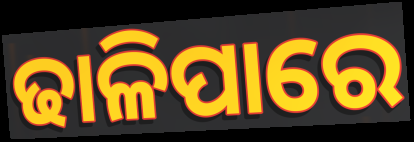
ଢାଳିପାରେ